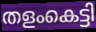
തളംകെട്ടി